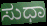
ಸುಧಾ